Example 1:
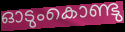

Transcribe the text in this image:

ഓടുംകൊണ്ടു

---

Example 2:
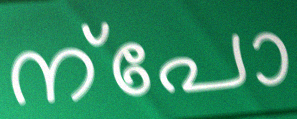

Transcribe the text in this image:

ന്പോ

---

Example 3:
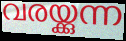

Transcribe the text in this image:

വരയ്ക്കുന്ന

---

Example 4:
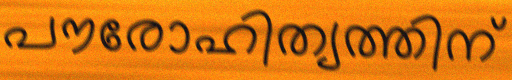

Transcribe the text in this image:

പൗരോഹിത്യത്തിന്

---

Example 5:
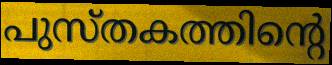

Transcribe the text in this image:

പുസ്തകത്തിന്റെ